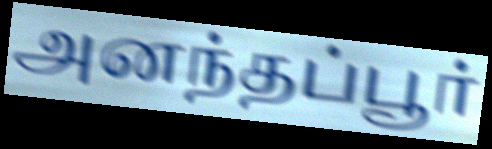
அனந்தப்பூர்